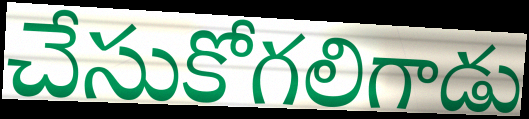
చేసుకోగలిగాడు